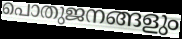
പൊതുജനങ്ങളും